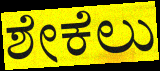
ಶೇಕೆಲು